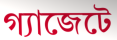
গ্যাজেটে